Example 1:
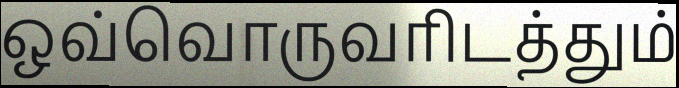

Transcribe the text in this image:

ஒவ்வொருவரிடத்தும்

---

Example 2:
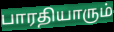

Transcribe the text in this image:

பாரதியாரும்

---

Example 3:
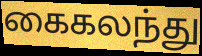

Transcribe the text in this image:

கைகலந்து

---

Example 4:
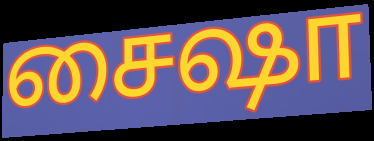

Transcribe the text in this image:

சைஷா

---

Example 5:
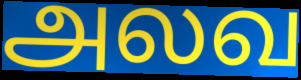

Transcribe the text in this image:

அலவ